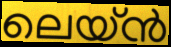
ലെയ്ൻ